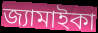
জ্যামাইকা